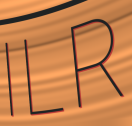
ILR